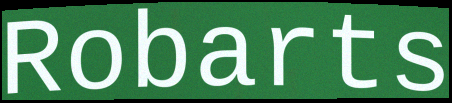
Robarts